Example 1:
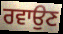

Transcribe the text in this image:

ਰਵਾਉਣ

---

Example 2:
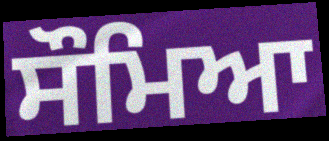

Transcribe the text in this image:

ਸੌਮਿਆ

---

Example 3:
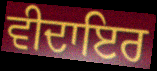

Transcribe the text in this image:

ਵੀਦਾਇਰ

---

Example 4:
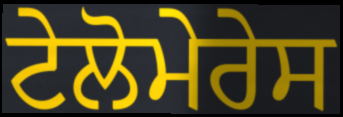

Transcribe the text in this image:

ਟੇਲੋਮੇਰੇਸ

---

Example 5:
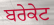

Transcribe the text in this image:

ਬਰੇਕੇਟ